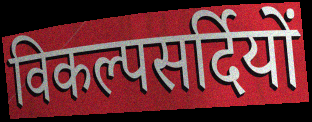
विकल्पसर्दियों